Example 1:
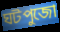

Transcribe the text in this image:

ঘটপুজো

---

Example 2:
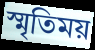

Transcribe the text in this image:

স্মৃতিময়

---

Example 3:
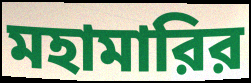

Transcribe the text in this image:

মহামারির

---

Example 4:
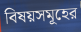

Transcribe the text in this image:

বিষয়সমূহের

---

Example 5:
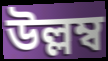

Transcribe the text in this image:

উল্লম্ব